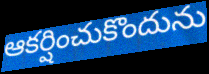
ఆకర్షించుకొందును